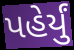
પહેર્યું